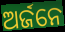
ଅର୍ଜନେ